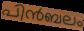
പിൻബലം